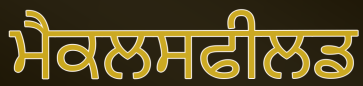
ਮੈਕਲਸਫੀਲਡ